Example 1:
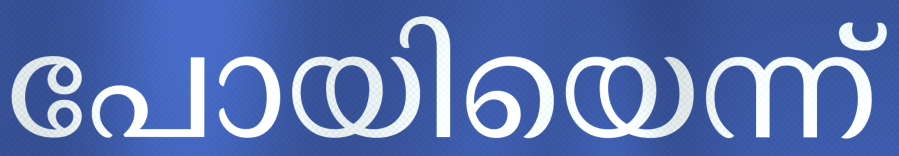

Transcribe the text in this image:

പോയിയെന്ന്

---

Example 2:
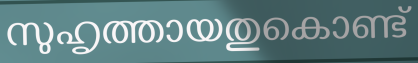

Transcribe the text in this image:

സുഹൃത്തായതുകൊണ്ട്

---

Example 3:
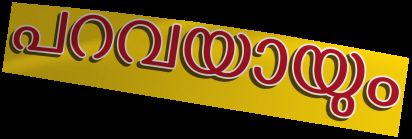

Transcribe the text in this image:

പറവയായും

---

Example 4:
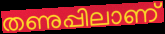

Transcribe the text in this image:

തണുപ്പിലാണ്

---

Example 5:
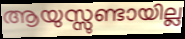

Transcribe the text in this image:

ആയുസ്സുണ്ടായില്ല